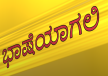
ಭಾಷೆಯಾಗಲಿ